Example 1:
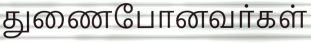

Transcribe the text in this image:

துணைபோனவர்கள்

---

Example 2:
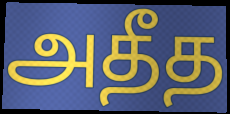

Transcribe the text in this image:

அதீத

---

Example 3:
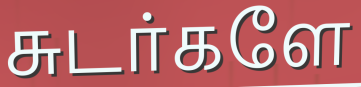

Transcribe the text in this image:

சுடர்களே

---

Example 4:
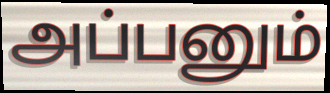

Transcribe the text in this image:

அப்பனும்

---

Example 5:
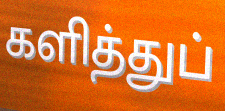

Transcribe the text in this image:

களித்துப்